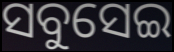
ସବୁସେଇ